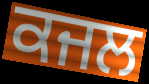
ਕਜਲ